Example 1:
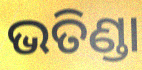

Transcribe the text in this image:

ଭତିଣ୍ଡା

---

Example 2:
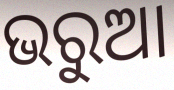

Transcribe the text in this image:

ଭରୁଆ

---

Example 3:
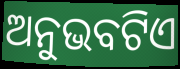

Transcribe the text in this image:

ଅନୁଭବଟିଏ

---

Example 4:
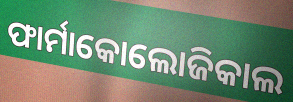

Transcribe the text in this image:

ଫାର୍ମାକୋଲୋଜିକାଲ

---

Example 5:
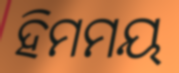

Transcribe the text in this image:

ହିମମୟ